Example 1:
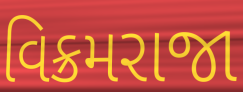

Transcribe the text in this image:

વિક્રમરાજા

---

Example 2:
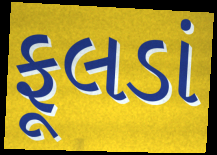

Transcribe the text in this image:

ફૂલડાં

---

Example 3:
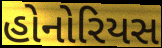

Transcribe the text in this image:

હોનોરિયસ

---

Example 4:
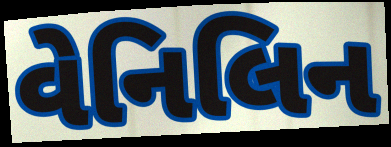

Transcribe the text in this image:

વેનિલિન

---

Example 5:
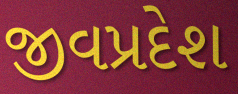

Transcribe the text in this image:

જીવપ્રદેશ